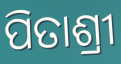
ପିତାଶ୍ରୀ